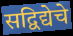
सद्विद्येचे